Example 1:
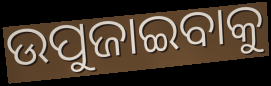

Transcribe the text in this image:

ଉପୁଜାଇବାକୁ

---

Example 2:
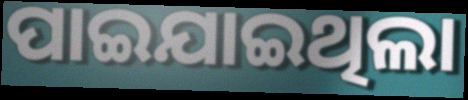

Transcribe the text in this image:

ପାଇଯାଇଥିଲା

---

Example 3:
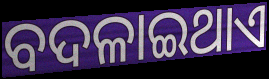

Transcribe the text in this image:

ବଦଳାଇଥାଏ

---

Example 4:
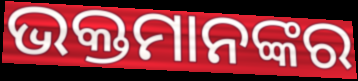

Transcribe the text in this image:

ଭକ୍ତମାନଙ୍କର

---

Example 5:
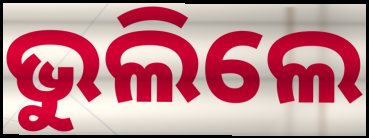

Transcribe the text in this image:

ଭୁଲିଲେ